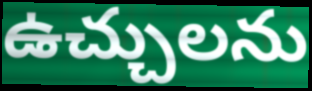
ఉచ్చులను